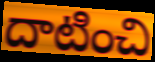
దాటించి